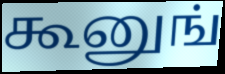
கூனுங்